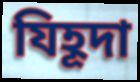
যিহূদা